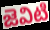
జెవిటి